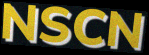
NSCN